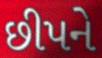
છીપને